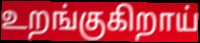
உறங்குகிறாய்